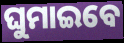
ଘୁମାଇବେ